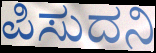
ಪಿಸುದನಿ